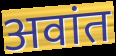
अवांत